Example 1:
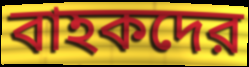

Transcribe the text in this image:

বাহকদের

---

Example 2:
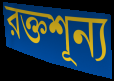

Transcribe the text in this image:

রক্তশূন্য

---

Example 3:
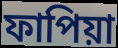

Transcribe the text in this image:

ফাপিয়া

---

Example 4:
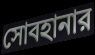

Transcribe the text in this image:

সোবহানার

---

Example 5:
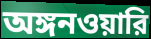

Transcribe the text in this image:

অঙ্গনওয়ারি